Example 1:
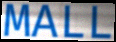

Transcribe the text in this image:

MALL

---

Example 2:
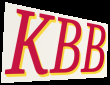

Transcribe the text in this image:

KBB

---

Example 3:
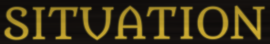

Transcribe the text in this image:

SITUATION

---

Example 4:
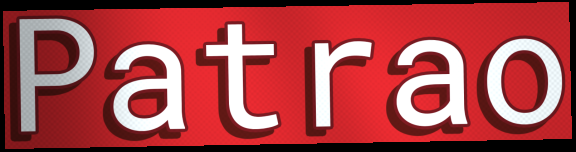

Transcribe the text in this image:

Patrao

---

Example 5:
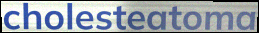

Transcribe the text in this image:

cholesteatoma